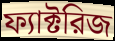
ফ্যাক্টরিজ